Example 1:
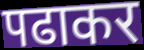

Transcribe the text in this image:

पढाकर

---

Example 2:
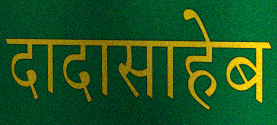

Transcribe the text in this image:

दादासाहेब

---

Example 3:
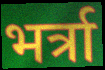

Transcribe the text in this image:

भर्त्रा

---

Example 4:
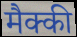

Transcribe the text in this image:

मैक्की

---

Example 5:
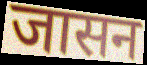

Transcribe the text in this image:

जासन